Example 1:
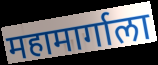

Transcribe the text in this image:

महामार्गाला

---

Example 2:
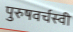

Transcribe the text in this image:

पुरुषवर्चस्वी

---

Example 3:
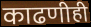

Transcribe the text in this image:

काढणीही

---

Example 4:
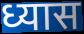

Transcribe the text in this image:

ध्यास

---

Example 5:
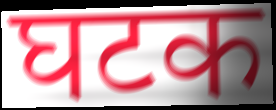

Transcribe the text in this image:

घटक